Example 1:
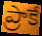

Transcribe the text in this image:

ప్రాకే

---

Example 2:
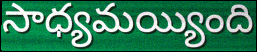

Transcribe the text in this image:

సాధ్యమయ్యింది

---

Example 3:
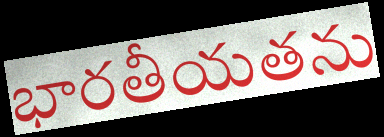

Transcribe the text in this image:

భారతీయతను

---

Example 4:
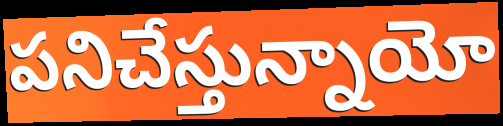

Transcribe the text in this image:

పనిచేస్తున్నాయో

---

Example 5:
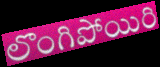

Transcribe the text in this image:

లొంగిపోయిరి